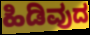
ಹಿಡಿವುದ